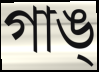
গাঙ্